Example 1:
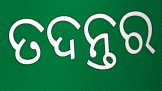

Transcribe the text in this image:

ତଦନ୍ତର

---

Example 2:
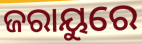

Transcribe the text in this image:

ଜରାୟୁରେ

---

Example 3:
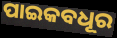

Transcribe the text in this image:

ପାଇକବଧୂର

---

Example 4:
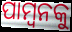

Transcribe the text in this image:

ପାମ୍ବନକୁ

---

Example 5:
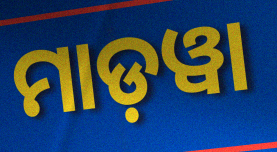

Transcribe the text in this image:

ମାଡ଼ୱା